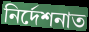
নিৰ্দেশনাত